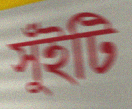
সুঁইটি